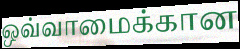
ஒவ்வாமைக்கான